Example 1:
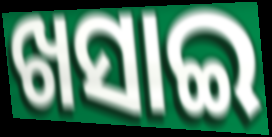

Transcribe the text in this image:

ଖସାଇ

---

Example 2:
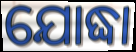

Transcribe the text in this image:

ଯୋଦ୍ଧା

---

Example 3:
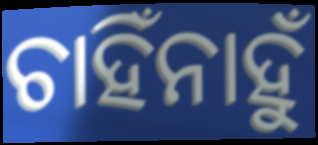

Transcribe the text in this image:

ଚାହିଁନାହୁଁ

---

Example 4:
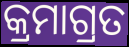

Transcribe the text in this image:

କ୍ରମାଗ୍ରତ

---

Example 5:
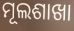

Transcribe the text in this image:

ମୂଲଶାଖା